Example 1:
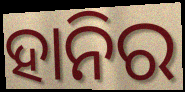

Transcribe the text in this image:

ହାନିର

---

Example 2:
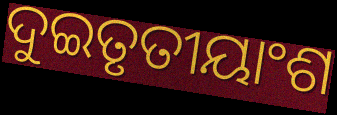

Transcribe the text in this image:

ଦୁଇତୃତୀୟାଂଶ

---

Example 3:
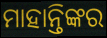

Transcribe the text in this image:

ମାହାନ୍ତିଙ୍କର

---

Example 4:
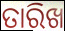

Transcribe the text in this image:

ତାରିଖ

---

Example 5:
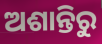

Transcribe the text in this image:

ଅଶାନ୍ତିରୁ